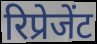
रिप्रेजेंट